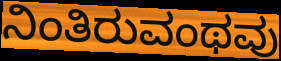
ನಿಂತಿರುವಂಥವು